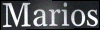
Marios